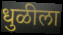
धुळीला